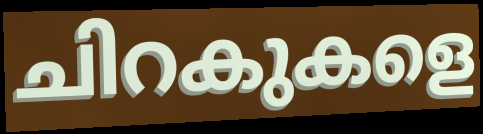
ചിറകുകളെ